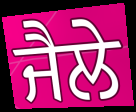
ਜੈਲੇ